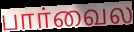
பார்வைல